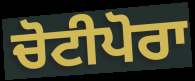
ਚੋਟੀਪੋਰਾ